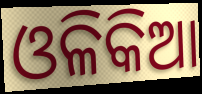
ଓଳିକିଆ